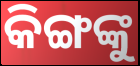
କିଙ୍ଗଙ୍କୁ